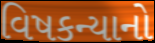
વિષકન્યાનો